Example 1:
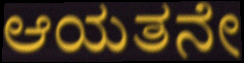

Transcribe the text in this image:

ಆಯತನೇ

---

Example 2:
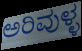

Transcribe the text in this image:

ಅರಿವುಳ್ಳ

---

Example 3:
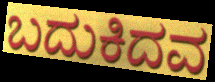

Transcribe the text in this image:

ಬದುಕಿದವ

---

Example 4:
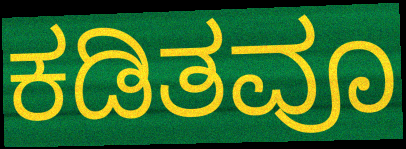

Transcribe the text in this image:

ಕಡಿತವೂ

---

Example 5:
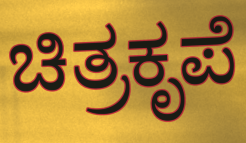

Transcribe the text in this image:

ಚಿತ್ರಕೃಪೆ